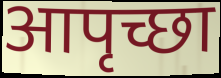
आपृच्छा